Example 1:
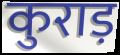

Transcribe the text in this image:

कुराड़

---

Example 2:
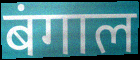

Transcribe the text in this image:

बंगाल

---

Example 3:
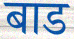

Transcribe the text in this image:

बाड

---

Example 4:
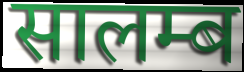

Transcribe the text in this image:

सालम्ब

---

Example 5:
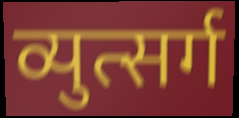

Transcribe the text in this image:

व्युत्सर्ग